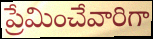
ప్రేమించేవారిగా